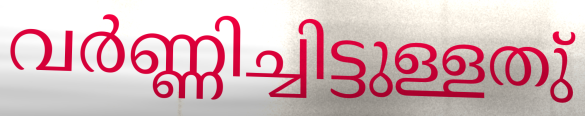
വർണ്ണിച്ചിട്ടുള്ളതു്